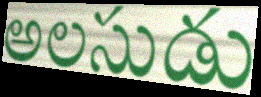
అలసుడు